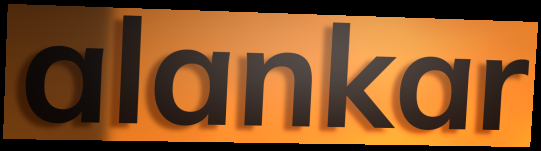
alankar